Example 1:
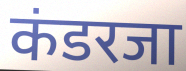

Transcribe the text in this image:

कंडरजा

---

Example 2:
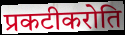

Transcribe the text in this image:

प्रकटीकरोति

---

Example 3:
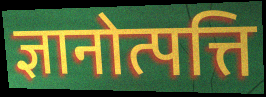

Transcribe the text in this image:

ज्ञानोत्पत्ति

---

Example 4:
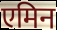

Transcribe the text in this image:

एमिन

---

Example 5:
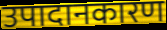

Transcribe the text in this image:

उपादानकारण